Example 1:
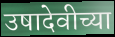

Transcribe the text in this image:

उषादेवीच्या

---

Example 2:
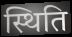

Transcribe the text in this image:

स्थिति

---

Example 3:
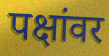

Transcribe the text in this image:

पक्षांवर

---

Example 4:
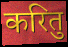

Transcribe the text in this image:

करितु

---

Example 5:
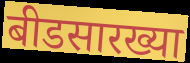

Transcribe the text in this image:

बीडसारख्या